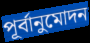
পূর্বানুমোদন